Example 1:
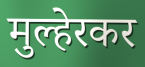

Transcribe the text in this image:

मुल्हेरकर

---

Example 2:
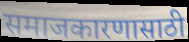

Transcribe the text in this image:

समाजकारणासाठी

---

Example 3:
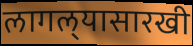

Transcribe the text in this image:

लागल्यासारखी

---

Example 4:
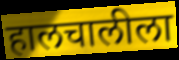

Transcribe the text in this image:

हालचालीला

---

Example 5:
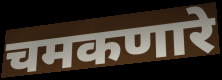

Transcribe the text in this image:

चमकणारे